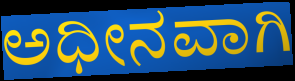
ಅಧೀನವಾಗಿ